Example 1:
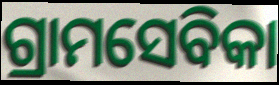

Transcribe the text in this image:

ଗ୍ରାମସେବିକା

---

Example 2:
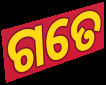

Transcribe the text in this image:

ଗତେ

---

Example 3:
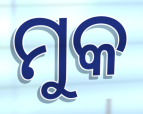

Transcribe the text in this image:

ମୁକ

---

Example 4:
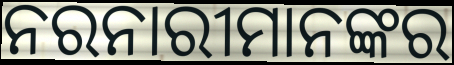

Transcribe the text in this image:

ନରନାରୀମାନଙ୍କର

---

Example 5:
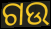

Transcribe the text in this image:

ଗଉ